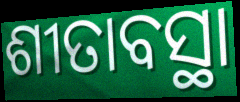
ଶୀତାବସ୍ଥା